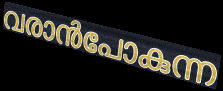
വരാൻപോകുന്ന